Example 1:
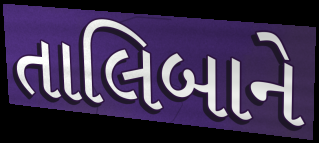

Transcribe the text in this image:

તાલિબાને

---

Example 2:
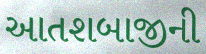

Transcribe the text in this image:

આતશબાજીની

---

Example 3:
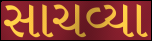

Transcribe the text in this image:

સાચવ્યા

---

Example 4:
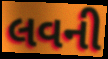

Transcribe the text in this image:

લવની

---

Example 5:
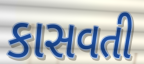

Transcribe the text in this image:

કાસવતી